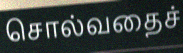
சொல்வதைச்